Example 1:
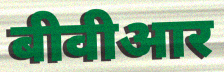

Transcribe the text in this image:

बीवीआर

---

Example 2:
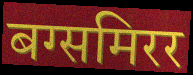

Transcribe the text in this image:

बग्समिरर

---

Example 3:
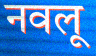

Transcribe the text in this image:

नवलू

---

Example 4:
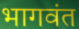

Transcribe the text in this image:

भागवंत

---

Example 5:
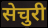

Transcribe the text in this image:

सेचुरी